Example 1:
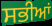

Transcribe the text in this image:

ਸਭੀਆਂ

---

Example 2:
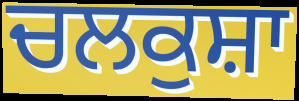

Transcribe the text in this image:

ਚਲਕੁਸ਼ਾ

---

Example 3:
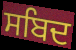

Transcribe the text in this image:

ਸਬਿਦ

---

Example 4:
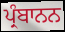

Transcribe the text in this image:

ਪ੍ਰੰਬਾਨਨ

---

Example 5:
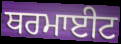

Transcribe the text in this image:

ਥਰਮਾਈਟ